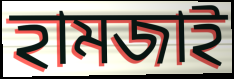
হামজাই